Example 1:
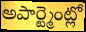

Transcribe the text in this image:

అపార్ట్మెంట్లో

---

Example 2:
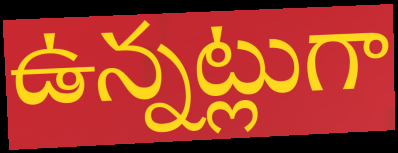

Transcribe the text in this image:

ఉన్నట్లుగా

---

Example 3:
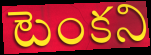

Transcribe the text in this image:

టెంకని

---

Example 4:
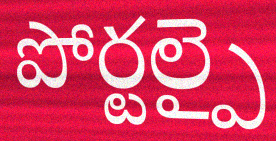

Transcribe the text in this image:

పోర్టల్పై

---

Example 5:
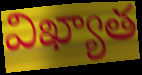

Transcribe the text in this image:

విఖ్యాత